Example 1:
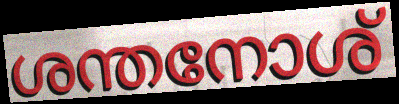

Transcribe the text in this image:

ശന്തനോശ്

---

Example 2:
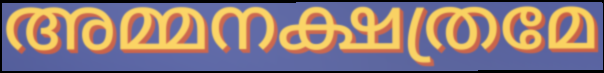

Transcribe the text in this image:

അമ്മനക്ഷത്രമേ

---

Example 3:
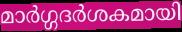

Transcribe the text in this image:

മാർഗ്ഗദർശകമായി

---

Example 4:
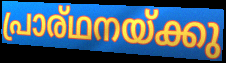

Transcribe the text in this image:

പ്രാര്ഥനയ്ക്കു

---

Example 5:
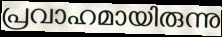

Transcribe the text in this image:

പ്രവാഹമായിരുന്നു